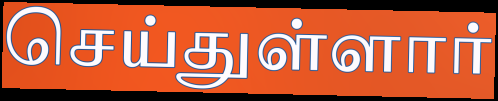
செய்துள்ளார்